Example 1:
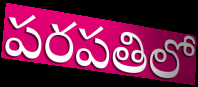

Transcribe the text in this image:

పరపతిలో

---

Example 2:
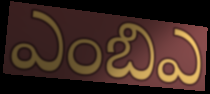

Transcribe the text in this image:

ఎంబిఎ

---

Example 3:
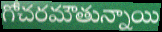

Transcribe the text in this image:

గోచరమౌతున్నాయి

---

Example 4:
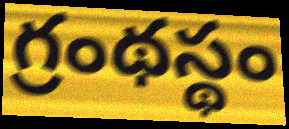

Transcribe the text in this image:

గ్రంథస్థం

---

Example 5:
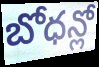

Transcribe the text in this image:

బోధన్లో